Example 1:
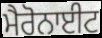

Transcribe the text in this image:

ਮੈਰੋਨਾਈਟ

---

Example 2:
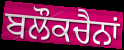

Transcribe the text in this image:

ਬਲੌਕਚੈਨਾਂ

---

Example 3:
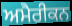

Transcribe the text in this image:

ਅਮੈਰੀਕਨ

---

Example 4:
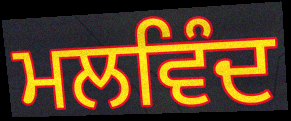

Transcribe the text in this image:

ਮਲਵਿੰਦ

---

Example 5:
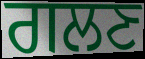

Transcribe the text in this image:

ਗਲਣ